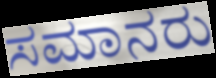
ಸಮಾನರು